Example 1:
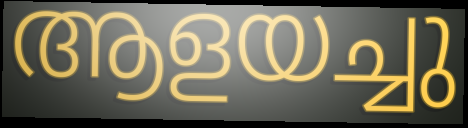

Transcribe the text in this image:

ആളയച്ചു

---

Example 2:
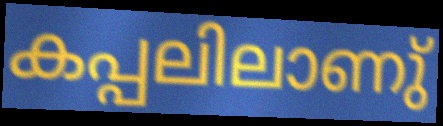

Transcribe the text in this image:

കപ്പലിലാണു്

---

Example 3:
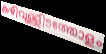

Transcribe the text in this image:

കഴിവുള്ളിടത്തോളം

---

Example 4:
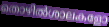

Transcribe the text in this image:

തൊഴിൽശാലകളോ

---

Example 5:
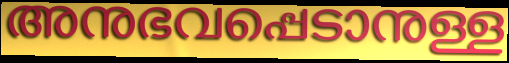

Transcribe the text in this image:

അനുഭവപ്പെടാനുള്ള